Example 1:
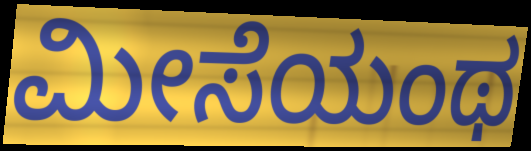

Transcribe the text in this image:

ಮೀಸೆಯಂಥ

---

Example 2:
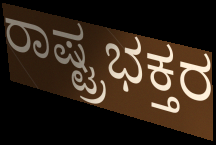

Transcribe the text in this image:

ರಾಷ್ಟ್ರಭಕ್ತರ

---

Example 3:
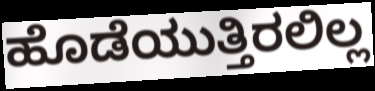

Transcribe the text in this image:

ಹೊಡೆಯುತ್ತಿರಲಿಲ್ಲ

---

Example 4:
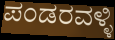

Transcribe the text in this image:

ಪಂಡರವಳ್ಳಿ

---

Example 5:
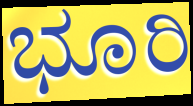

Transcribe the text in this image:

ಭೂರಿ